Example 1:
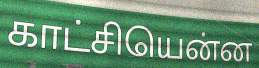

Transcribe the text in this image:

காட்சியென்ன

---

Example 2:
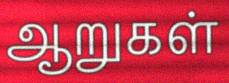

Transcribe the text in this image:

ஆறுகள்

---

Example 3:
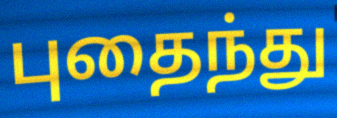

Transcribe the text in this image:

புதைந்து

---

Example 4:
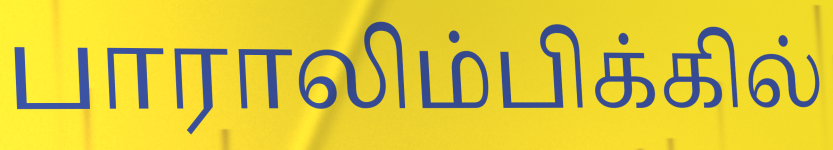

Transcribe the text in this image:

பாராலிம்பிக்கில்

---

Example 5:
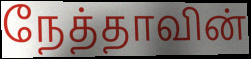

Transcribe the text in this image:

நேத்தாவின்